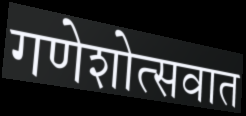
गणेशोत्सवात